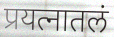
प्रयत्नातलं